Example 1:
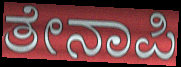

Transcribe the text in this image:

ತೇನಾಪಿ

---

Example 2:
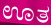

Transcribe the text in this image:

ಊತ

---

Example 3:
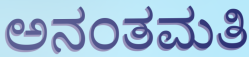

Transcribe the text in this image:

ಅನಂತಮತಿ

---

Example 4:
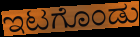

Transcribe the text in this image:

ಇಟಗೊಂಡು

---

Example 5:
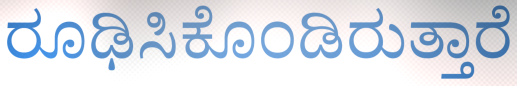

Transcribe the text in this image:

ರೂಢಿಸಿಕೊಂಡಿರುತ್ತಾರೆ